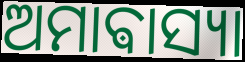
ଅମାଵାସ୍ୟା